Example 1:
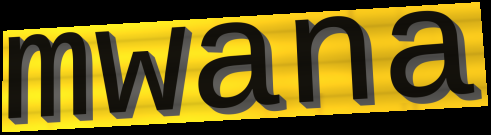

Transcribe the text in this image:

mwana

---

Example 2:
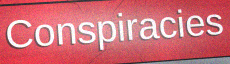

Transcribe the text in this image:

Conspiracies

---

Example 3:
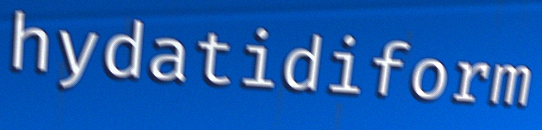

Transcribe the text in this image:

hydatidiform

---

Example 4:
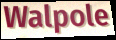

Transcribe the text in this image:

Walpole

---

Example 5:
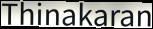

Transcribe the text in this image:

Thinakaran